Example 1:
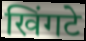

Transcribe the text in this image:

खिंगटे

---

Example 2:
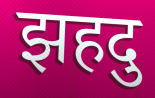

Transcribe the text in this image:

झहदु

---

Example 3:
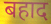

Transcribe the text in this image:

बहाद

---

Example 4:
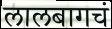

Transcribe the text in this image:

लालबागचं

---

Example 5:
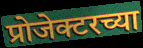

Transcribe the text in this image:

प्रोजेक्टरच्या